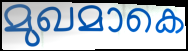
മുഖമാകെ